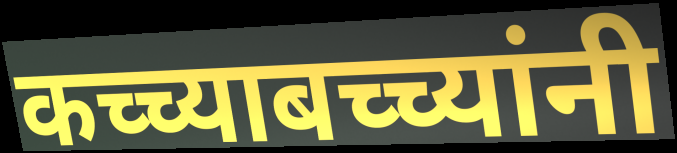
कच्च्याबच्च्यांनी